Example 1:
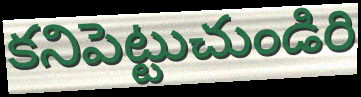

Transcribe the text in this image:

కనిపెట్టుచుండిరి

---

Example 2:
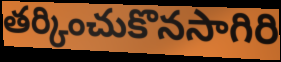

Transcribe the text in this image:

తర్కించుకొనసాగిరి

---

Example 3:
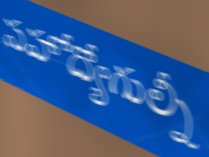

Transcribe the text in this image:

సహోద్యోగుల్నీ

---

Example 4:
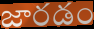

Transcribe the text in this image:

జారడం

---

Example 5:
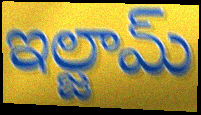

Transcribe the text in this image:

ఇల్జామ్